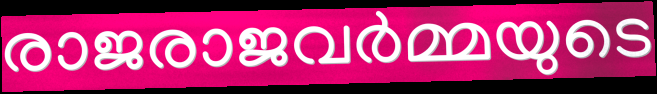
രാജരാജവർമ്മയുടെ